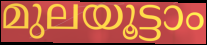
മുലയൂട്ടാം